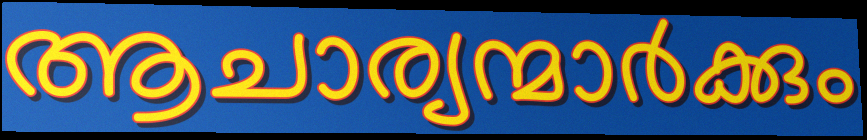
ആചാര്യന്മാർക്കും